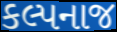
કલ્પનાજ